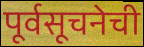
पूर्वसूचनेची